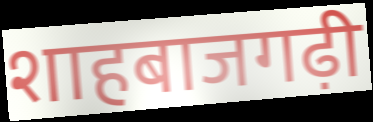
शाहबाजगढ़ी